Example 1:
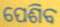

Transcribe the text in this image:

ପେଶିବ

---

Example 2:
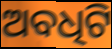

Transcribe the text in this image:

ଅବଧିଟି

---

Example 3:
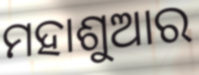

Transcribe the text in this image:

ମହାଶୁଆର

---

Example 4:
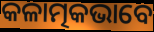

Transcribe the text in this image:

କଳାତ୍ମକଭାବେ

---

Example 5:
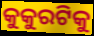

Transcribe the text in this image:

କୁକୁରଟିକୁ